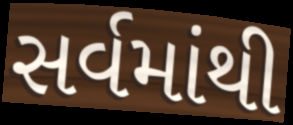
સર્વમાંથી